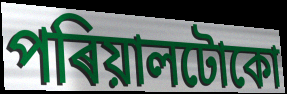
পৰিয়ালটোকো